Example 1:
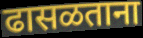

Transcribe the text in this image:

ढासळताना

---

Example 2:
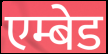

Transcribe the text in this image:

एम्बेड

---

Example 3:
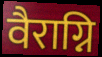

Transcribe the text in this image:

वैराग्नि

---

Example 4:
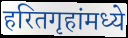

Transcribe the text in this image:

हरितगृहांमध्ये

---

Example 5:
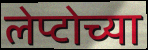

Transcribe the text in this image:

लेप्टोच्या